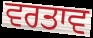
ਵਰਤਾਵ